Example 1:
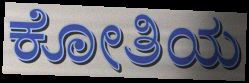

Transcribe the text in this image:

ಕೋತಿಯ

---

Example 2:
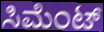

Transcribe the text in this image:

ಸಿಮೆಂಟ್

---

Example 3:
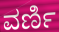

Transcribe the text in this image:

ವರ್ಣಿ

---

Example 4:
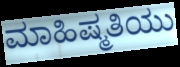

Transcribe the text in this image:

ಮಾಹಿಷ್ಮತಿಯು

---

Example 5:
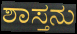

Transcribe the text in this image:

ಶಾಸ್ತನು